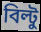
বিল্টু